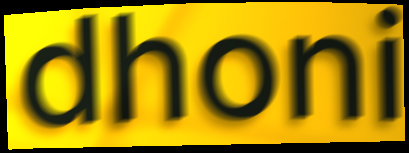
dhoni